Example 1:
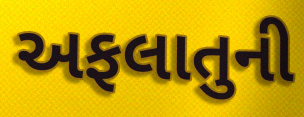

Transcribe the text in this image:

અફલાતુની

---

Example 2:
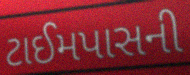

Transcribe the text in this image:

ટાઈમપાસની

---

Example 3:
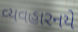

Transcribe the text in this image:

વ્યવહારનયે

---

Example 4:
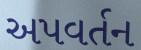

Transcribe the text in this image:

અપવર્તન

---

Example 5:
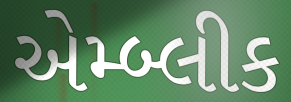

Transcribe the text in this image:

એમ્બ્લીક